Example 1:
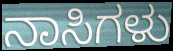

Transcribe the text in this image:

ನಾಸಿಗಳು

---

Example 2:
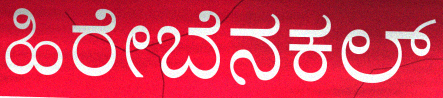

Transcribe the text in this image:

ಹಿರೇಬೆನಕಲ್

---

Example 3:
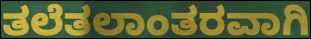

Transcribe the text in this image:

ತಲೆತಲಾಂತರವಾಗಿ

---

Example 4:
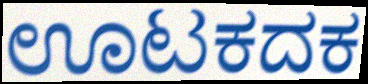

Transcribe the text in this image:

ಊಟಕದಕ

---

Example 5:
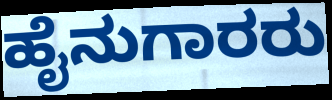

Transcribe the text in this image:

ಹೈನುಗಾರರು